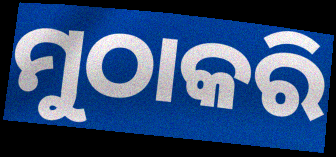
ମୁଠାକରି